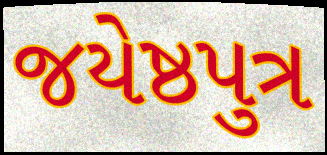
જયેષ્ઠપુત્ર